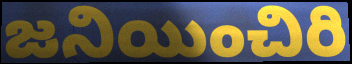
జనియించిరి